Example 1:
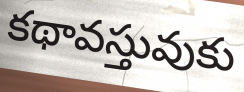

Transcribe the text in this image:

కథావస్తువుకు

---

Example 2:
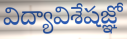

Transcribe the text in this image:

విద్యావిశేషజ్ఞో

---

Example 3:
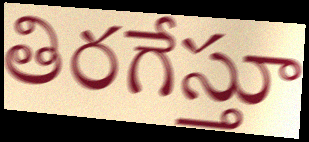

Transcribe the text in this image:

తిరగేస్తూ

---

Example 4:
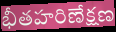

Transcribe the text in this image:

భీతహరిణేక్షణ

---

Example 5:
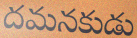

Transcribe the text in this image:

దమనకుడు